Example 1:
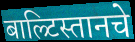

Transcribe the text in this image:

बाल्टिस्तानचे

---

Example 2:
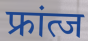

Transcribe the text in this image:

फ्रांत्ज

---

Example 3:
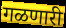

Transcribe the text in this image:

गळणारी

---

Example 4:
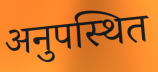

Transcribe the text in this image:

अनुपस्थित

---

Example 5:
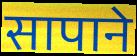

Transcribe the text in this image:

सापाने